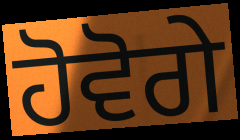
ਹੋਵੋਗੇ